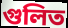
গুলিত